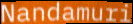
Nandamuri